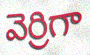
వెర్రిగా